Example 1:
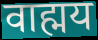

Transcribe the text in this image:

वाह्मय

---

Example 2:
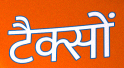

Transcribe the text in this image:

टैक्सों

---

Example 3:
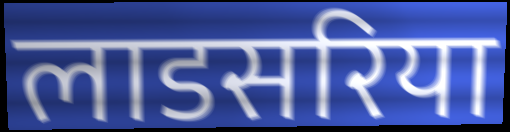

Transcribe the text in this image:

लाडसरिया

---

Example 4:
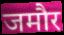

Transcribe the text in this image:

जमौर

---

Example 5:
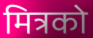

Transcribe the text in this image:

मित्रको